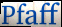
Pfaff